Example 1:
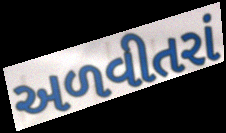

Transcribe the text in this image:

અળવીતરાં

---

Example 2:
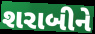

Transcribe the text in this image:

શરાબીને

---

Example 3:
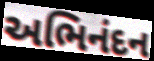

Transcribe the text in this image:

અભિનંદન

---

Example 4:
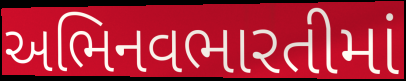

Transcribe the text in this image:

અભિનવભારતીમાં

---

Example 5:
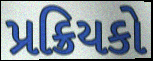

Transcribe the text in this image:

પ્રક્રિયકો